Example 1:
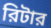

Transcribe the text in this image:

রিটার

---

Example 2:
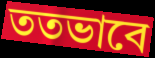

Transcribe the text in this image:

ততভাবে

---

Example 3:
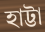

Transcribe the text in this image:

হাট্টা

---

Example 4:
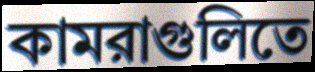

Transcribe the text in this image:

কামরাগুলিতে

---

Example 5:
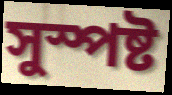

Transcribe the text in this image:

সুস্পষ্ট